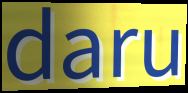
daru